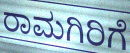
ರಾಮಗಿರಿಗೆ